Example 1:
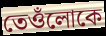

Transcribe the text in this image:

তেওঁলোকে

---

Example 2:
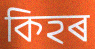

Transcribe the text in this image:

কিহৰ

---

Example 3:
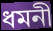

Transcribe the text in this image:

ধমনী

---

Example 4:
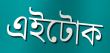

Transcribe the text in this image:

এইটোক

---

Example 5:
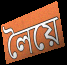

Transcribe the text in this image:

লৈয়ে